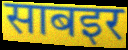
साबइर